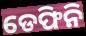
ଡେଫିନି